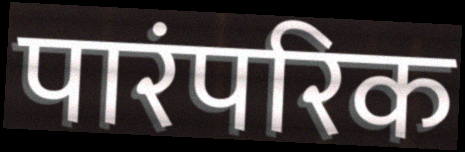
पारंपरिक